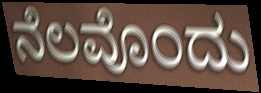
ನೆಲವೊಂದು